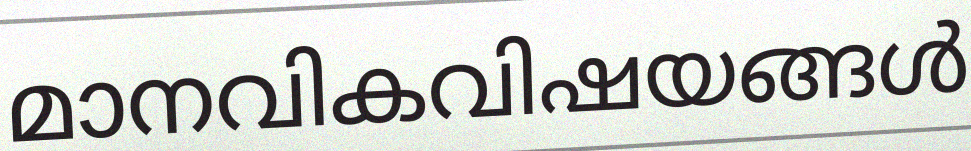
മാനവികവിഷയങ്ങൾ